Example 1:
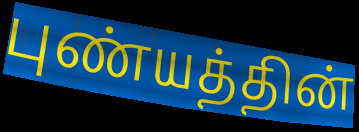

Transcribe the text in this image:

புண்யத்தின்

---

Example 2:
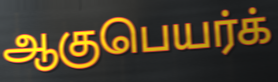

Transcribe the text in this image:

ஆகுபெயர்க்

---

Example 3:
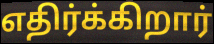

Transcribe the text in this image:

எதிர்க்கிறார்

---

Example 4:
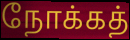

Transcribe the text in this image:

நோக்கத்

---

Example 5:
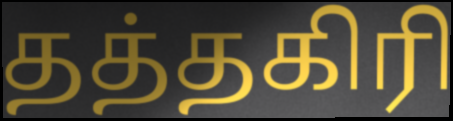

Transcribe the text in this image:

தத்தகிரி